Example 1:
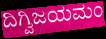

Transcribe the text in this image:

ದಿಗ್ವಿಜಯಮಂ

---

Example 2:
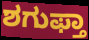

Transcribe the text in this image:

ಶಗುಫ್ತಾ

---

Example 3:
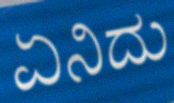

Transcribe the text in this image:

ಏನಿದು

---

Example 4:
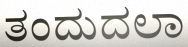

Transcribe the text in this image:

ತಂದುದಲಾ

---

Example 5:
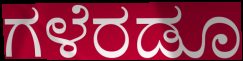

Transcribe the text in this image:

ಗಳೆರಡೂ